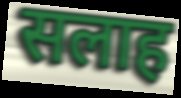
सलाह